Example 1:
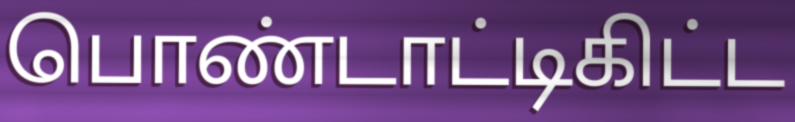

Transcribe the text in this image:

பொண்டாட்டிகிட்ட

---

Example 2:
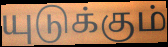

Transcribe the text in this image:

யுடுக்கும்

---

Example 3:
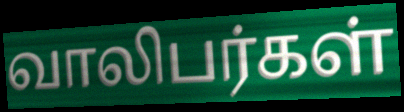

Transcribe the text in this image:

வாலிபர்கள்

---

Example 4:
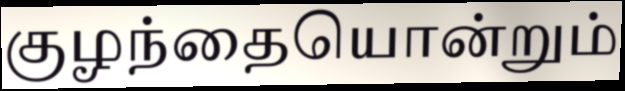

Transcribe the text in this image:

குழந்தையொன்றும்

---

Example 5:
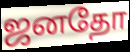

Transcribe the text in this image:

ஜனதோ